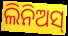
ଲିନିଅସ୍